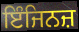
ਇੰਜਿਨਜ਼